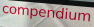
compendium